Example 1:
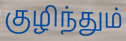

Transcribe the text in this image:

குழிந்தும்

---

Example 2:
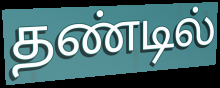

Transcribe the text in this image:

தண்டில்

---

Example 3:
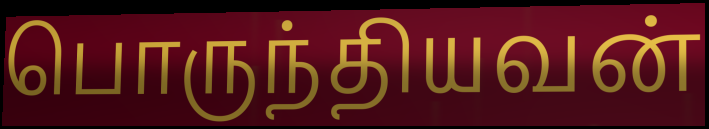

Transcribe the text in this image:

பொருந்தியவன்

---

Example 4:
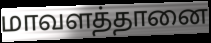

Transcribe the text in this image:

மாவளத்தானை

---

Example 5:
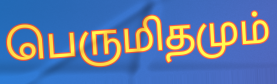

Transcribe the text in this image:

பெருமிதமும்